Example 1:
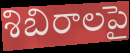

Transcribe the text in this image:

శిబిరాలపై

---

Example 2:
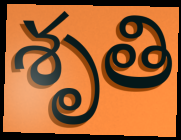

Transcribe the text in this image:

శృతి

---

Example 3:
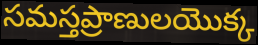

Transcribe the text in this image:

సమస్తప్రాణులయొక్క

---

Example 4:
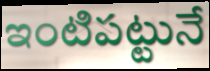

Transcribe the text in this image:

ఇంటిపట్టునే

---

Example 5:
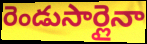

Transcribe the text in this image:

రెండుసార్లైనా